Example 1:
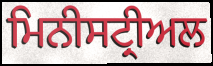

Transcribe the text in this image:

ਮਿਨੀਸਟ੍ਰੀਅਲ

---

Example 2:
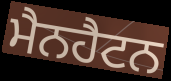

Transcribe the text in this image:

ਮੈਨਹੈਟਨ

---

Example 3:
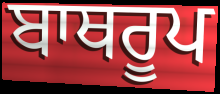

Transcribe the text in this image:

ਬਾਥਰੂਪ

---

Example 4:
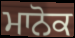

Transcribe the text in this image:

ਮਾਨੋਕ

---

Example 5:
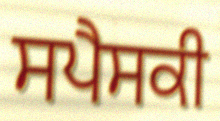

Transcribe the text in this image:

ਸਪੈਸਕੀ